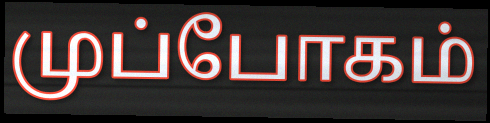
முப்போகம்